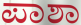
ಪಾಶಾ